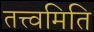
तत्त्वमिति